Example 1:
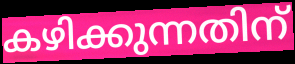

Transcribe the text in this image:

കഴിക്കുന്നതിന്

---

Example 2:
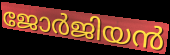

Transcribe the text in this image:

ജോർജിയൻ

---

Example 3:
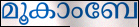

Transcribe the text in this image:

മൂകാംബേ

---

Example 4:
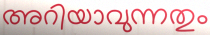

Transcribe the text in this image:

അറിയാവുന്നതും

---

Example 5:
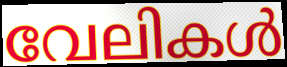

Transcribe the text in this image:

വേലികൾ